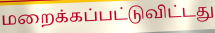
மறைக்கப்பட்டுவிட்டது